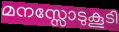
മനസ്സോടുകൂടി